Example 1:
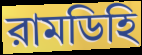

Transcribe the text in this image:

রামডিহি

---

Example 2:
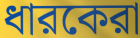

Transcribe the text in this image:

ধারকেরা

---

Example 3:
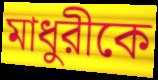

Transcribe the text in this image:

মাধুরীকে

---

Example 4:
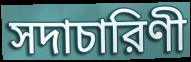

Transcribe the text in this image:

সদাচারিণী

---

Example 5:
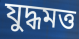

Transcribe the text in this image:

যুদ্ধমত্ত